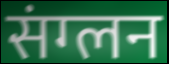
संग्लन